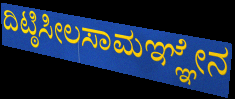
ದಿಟ್ಠಿಸೀಲಸಾಮಞ್ಞೇನ